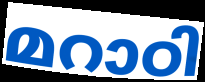
മറാഠി